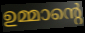
ഉമ്മാന്റെ